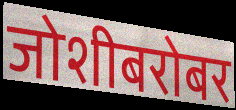
जोशीबरोबर